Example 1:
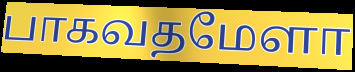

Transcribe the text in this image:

பாகவதமேளா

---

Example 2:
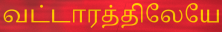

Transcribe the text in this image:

வட்டாரத்திலேயே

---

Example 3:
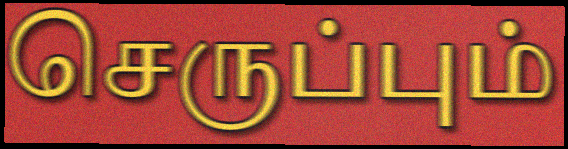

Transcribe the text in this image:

செருப்பும்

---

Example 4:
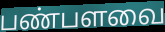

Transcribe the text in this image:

பண்பளவை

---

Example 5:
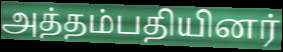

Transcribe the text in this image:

அத்தம்பதியினர்